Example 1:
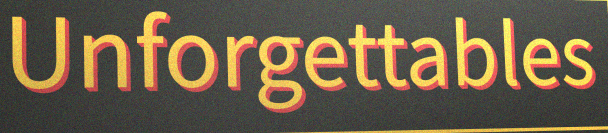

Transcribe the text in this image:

Unforgettables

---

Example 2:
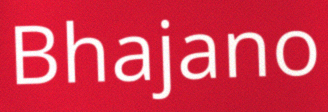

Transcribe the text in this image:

Bhajano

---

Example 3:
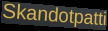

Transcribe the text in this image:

Skandotpatti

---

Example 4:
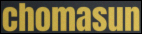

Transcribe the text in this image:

chomasun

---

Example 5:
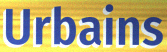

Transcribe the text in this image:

Urbains